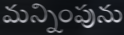
మన్నింపును